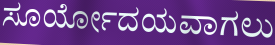
ಸೂರ್ಯೋದಯವಾಗಲು